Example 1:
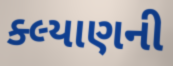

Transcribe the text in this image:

ક્લ્યાણની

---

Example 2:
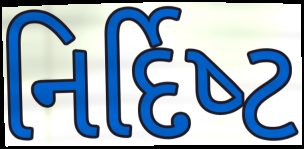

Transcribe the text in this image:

નિર્દિષ્‍ટ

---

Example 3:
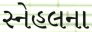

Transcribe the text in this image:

સ્નેહલના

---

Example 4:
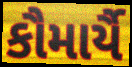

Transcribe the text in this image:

કૌમાર્યૈ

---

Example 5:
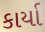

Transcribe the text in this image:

કાર્યા